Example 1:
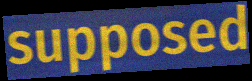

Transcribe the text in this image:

supposed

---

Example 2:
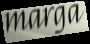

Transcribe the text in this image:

marga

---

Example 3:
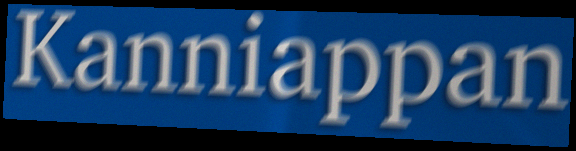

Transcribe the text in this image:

Kanniappan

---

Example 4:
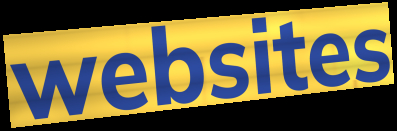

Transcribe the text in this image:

websites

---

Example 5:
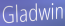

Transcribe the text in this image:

Gladwin